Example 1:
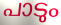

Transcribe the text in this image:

പാടും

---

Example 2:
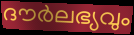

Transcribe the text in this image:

ദൗർലഭ്യവും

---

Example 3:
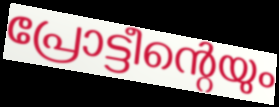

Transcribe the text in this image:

പ്രോട്ടീന്റെയും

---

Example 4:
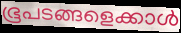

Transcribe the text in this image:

ഭൂപടങ്ങളെക്കാൾ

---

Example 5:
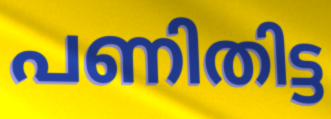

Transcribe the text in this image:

പണിതിട്ട